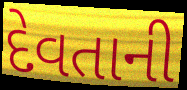
દેવતાની